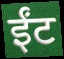
ईंट